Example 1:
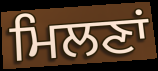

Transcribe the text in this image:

ਮਿਲਣਾਂ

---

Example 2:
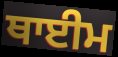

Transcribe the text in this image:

ਥਾਈਮ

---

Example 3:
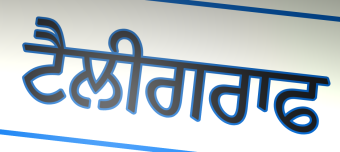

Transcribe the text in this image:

ਟੈਲੀਗਰਾਫ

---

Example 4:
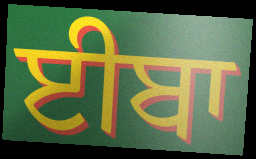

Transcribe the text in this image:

ਈਬਾ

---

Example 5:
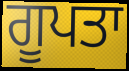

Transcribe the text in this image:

ਗੂਪਤਾ